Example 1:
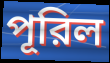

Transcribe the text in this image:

পূরিল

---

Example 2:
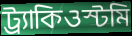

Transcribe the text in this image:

ট্র্যাকিওস্টমি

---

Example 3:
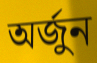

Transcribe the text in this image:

অর্জুন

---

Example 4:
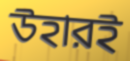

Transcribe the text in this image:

উহারই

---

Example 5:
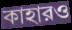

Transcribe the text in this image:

কাহারও